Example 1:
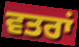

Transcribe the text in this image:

ਵਤਰਾਂ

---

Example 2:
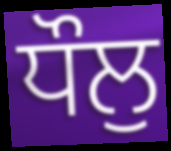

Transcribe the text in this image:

ਧੌਲੁ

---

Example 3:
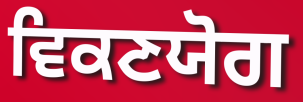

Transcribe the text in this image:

ਵਿਕਣਯੋਗ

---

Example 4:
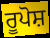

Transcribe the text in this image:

ਰੂਪੋਸ਼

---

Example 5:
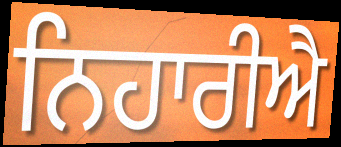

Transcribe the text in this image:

ਨਿਹਾਰੀਐ